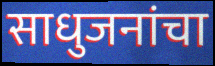
साधुजनांचा